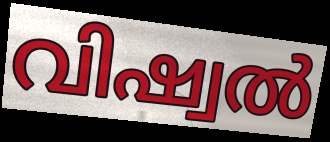
വിഷ്വൽ